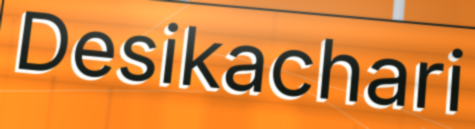
Desikachari